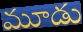
మూడు